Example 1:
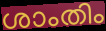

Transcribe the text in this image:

ശാംതിം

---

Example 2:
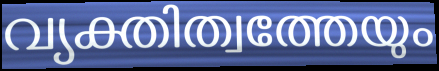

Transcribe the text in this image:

വ്യക്തിത്വത്തേയും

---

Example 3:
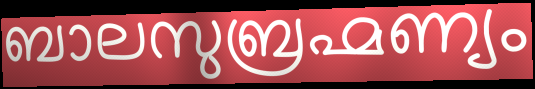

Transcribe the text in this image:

ബാലസുബ്രഹ്മണ്യം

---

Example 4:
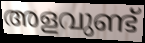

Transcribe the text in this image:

അളവുണ്ട്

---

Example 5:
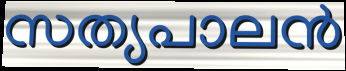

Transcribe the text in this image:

സത്യപാലൻ